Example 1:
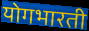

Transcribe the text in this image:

योगभारती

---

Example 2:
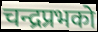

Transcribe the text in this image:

चन्द्रप्रभको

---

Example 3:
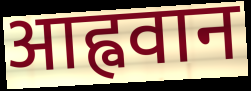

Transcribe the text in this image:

आह्ववान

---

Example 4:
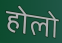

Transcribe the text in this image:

होलो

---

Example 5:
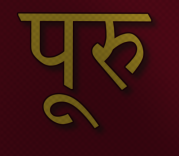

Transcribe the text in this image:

पूरु